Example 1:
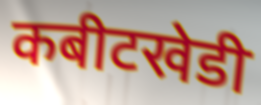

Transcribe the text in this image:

कबीटखेडी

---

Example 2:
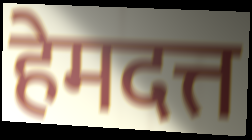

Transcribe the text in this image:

हेमदत्त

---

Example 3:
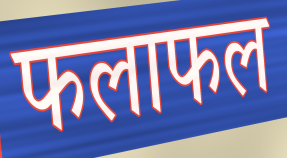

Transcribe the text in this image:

फलाफल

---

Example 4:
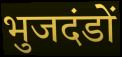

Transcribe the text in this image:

भुजदंडों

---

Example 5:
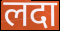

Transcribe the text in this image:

लदा